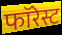
फॉरेस्‍ट